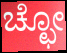
ಚ್ಛೋ